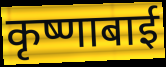
कृष्णाबाई